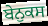
ਬੇਨੁਕਸ